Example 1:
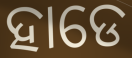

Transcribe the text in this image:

ହାଡେ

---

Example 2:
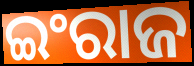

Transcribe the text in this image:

ଇଂରାଜ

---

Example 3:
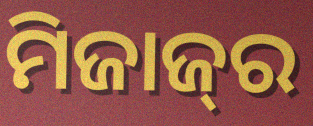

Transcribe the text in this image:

ମିଜାଜ୍‌ର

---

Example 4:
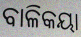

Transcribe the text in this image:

ବାଳିକୟା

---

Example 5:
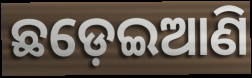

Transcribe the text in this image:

ଛଡ଼େଇଆଣି